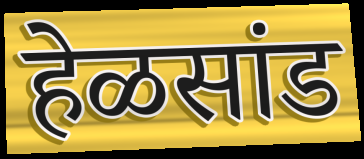
हेळसांड